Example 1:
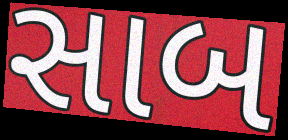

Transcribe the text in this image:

સાબ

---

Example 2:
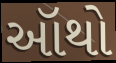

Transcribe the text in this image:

ઑથો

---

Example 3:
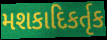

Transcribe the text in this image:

મશકાદિકર્તૃક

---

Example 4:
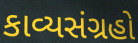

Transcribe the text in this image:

કાવ્યસંગ્રહો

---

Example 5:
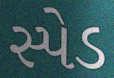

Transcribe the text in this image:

સ્પેડ